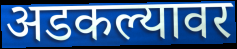
अडकल्यावर